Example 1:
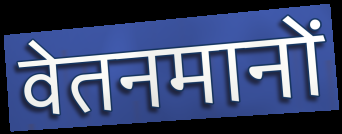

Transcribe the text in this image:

वेतनमानों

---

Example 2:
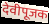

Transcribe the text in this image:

देवीपूजक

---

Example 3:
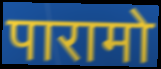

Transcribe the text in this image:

पारामो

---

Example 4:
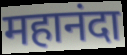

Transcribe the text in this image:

महानंदा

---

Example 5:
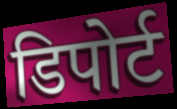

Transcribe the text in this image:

डिपोर्ट